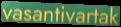
vasantivartak